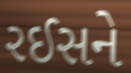
રઈસને